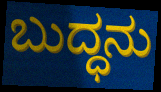
ಬುದ್ಧನು